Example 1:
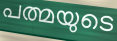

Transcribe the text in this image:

പത്മയുടെ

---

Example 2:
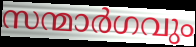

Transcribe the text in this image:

സന്മാർഗവും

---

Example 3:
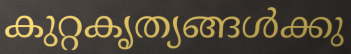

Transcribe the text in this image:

കുറ്റകൃത്യങ്ങൾക്കു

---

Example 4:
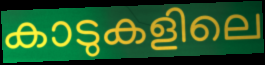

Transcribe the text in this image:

കാടുകളിലെ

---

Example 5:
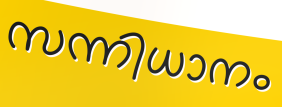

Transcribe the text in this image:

സന്നിധാനം